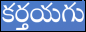
కర్తయగు